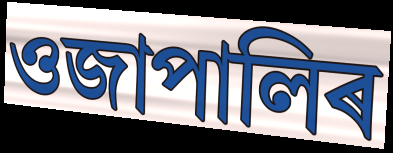
ওজাপালিৰ